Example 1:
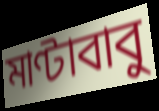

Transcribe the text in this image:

মাণ্টাবাবু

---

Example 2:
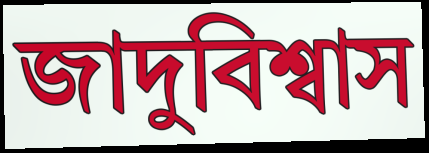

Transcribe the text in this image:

জাদুবিশ্বাস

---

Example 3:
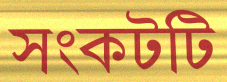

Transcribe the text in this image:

সংকটটি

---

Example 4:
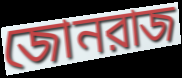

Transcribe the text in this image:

জোনরাজ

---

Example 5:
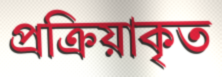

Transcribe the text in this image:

প্রক্রিয়াকৃত